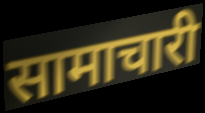
सामाचारी